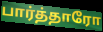
பார்த்தாரோ